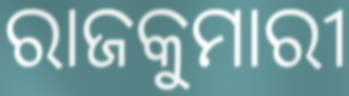
ରାଜକୁମାରୀ